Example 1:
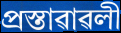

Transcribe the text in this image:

প্ৰস্তাৱাৱলী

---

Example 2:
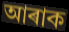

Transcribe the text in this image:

আৰাক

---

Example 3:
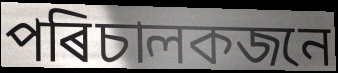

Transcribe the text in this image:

পৰিচালকজনে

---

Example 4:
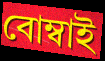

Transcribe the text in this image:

বোম্বাই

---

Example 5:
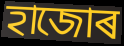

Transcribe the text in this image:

হাজোৰ